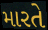
મારતે